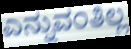
ಎನ್ನುವಂತಿಲ್ಲ